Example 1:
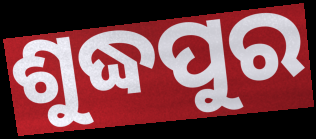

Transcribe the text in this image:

ଶୁଦ୍ଧପୁର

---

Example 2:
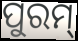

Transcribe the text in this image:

ପୁରମ୍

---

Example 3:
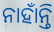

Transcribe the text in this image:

ନାହାଁନ୍ତି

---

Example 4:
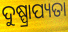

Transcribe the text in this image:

ଦୁଷ୍ପ୍ରାପ୍ୟତା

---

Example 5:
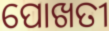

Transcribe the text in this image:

ପୋଖତୀ